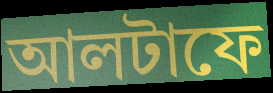
আলটাফে